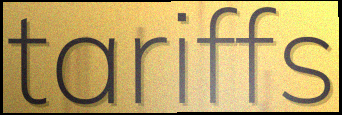
tariffs